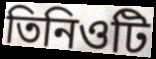
তিনিওটি